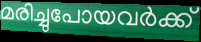
മരിച്ചുപോയവർക്ക്